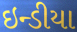
ઇન્ડીયા